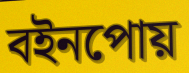
বইনপোয়